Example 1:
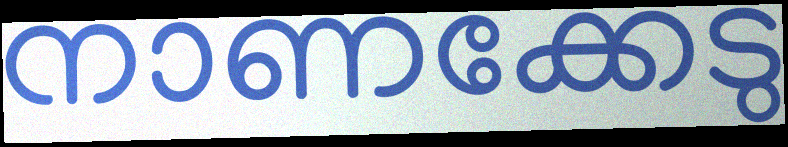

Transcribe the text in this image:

നാണക്കേടു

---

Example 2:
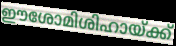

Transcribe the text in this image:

ഈശോമിശിഹായ്ക്ക്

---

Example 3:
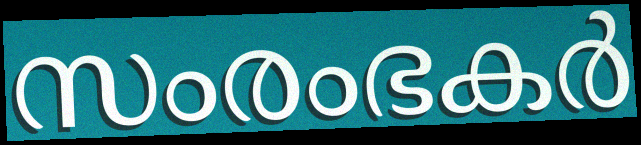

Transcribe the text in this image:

സംരംഭകർ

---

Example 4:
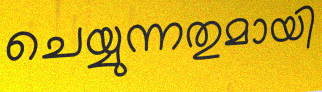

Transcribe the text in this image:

ചെയ്യുന്നതുമായി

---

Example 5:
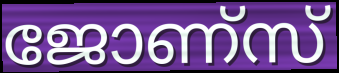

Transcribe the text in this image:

ജോണ്സ്